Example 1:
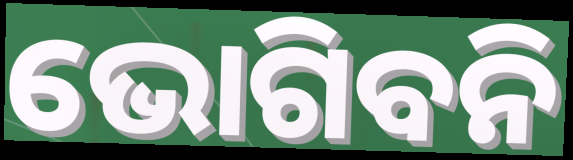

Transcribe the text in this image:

ଭୋଗିବନି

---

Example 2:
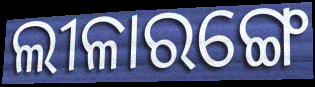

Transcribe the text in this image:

ଲୀଳାରଙ୍ଗେ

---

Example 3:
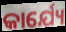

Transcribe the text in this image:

କାର୍ଯ୍ୟେ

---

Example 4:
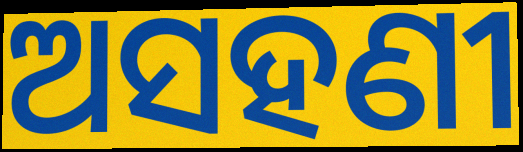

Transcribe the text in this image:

ଅସହଣୀ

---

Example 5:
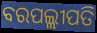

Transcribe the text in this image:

ବରପଲ୍ଲୀପତି